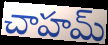
చాహమ్